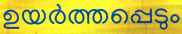
ഉയർത്തപ്പെടും